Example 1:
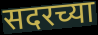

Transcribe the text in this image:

सदरच्या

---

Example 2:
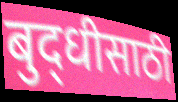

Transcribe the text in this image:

बुद्धीसाठी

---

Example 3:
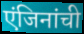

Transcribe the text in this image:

एंजिनांची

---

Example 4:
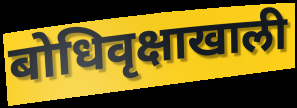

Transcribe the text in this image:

बोधिवृक्षाखाली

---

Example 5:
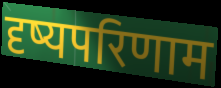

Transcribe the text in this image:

दृष्यपरिणाम